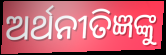
ଅର୍ଥନୀତିଜ୍ଞଙ୍କୁ